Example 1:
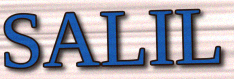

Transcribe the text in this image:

SALIL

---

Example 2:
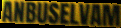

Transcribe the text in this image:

ANBUSELVAM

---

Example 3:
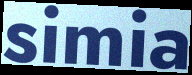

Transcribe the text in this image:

simia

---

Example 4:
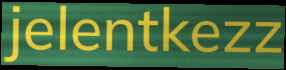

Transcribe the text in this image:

jelentkezz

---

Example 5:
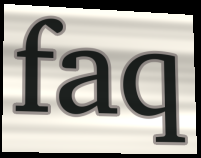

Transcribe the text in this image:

faq